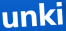
unki